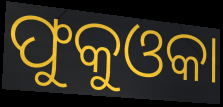
ଫୁକୁଓକା